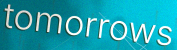
tomorrows